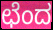
ಛೆಂದ